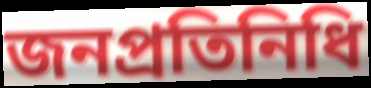
জনপ্রতিনিধি